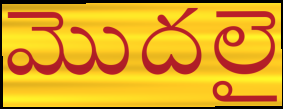
మొదలై